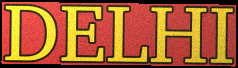
DELHI